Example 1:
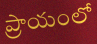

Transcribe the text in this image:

ప్రాయంలో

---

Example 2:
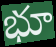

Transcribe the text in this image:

భూ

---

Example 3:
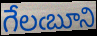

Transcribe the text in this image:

గేలఁబూని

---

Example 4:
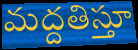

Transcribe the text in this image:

మద్దతిస్తూ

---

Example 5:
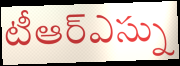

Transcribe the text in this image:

టీఆర్ఎస్ను